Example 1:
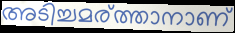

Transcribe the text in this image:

അടിച്ചമര്ത്താനാണ്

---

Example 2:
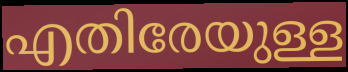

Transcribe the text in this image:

എതിരേയുള്ള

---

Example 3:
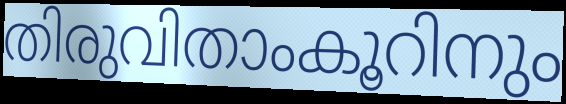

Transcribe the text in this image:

തിരുവിതാംകൂറിനും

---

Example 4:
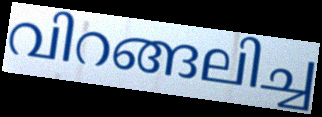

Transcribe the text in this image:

വിറങ്ങലിച്ച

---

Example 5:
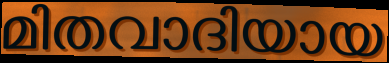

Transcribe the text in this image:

മിതവാദിയായ